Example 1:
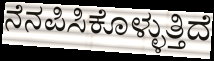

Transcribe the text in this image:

ನೆನಪಿಸಿಕೊಳ್ಳುತ್ತಿದೆ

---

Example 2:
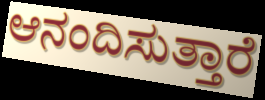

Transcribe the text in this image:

ಆನಂದಿಸುತ್ತಾರೆ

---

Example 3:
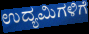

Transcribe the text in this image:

ಉದ್ಯಮಿಗಳಿಗೆ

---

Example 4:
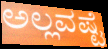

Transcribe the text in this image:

ಅಲ್ಲವಷ್ಟೆ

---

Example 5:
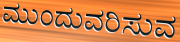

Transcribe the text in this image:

ಮುಂದುವರಿಸುವ